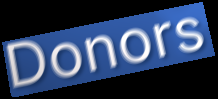
Donors